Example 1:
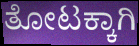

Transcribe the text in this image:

ತೋಟಕ್ಕಾಗಿ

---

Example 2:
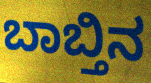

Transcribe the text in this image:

ಬಾಬ್ತಿನ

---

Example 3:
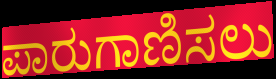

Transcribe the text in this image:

ಪಾರುಗಾಣಿಸಲು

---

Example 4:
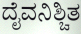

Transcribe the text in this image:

ದೈವನಿಶ್ಚಿತ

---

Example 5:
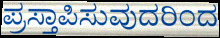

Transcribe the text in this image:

ಪ್ರಸ್ತಾಪಿಸುವುದರಿಂದ